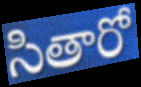
సితారో